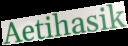
Aetihasik